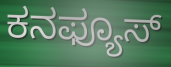
ಕನಫ್ಯೂಸ್